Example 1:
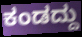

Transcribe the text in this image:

ಕಂಡದ್ದು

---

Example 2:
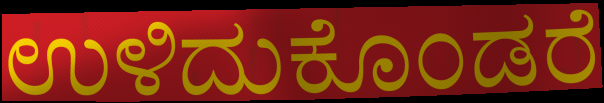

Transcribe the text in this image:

ಉಳಿದುಕೊಂಡರೆ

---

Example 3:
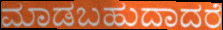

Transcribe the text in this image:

ಮಾಡಬಹುದಾದರೆ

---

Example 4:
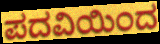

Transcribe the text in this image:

ಪದವಿಯಿಂದ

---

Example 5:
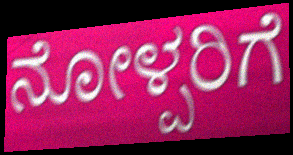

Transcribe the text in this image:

ನೋಳ್ಪರಿಗೆ